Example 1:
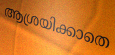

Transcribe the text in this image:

ആശ്രയിക്കാതെ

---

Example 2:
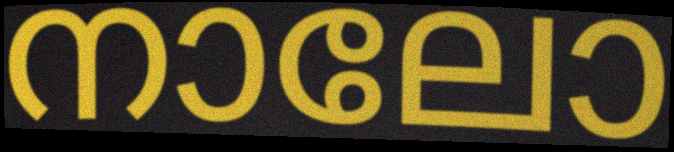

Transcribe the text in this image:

നാലോ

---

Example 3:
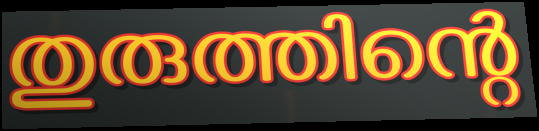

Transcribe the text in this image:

തുരുത്തിന്റെ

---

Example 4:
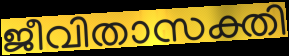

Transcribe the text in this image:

ജീവിതാസക്തി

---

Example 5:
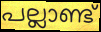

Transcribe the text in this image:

പല്ലാണ്ട്